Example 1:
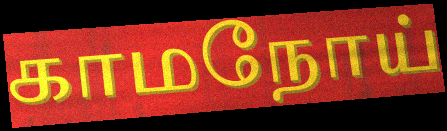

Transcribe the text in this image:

காமநோய்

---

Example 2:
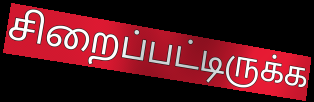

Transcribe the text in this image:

சிறைப்பட்டிருக்க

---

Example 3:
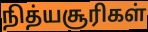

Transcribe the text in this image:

நித்யசூரிகள்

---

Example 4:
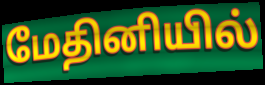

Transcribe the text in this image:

மேதினியில்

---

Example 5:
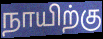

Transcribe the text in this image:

நாயிற்கு